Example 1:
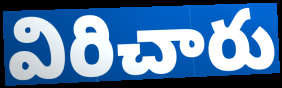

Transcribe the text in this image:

విరిచారు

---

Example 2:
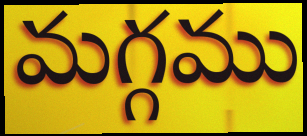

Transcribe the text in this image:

మగ్గము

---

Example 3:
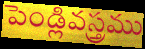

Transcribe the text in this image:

పెండ్లివస్త్రము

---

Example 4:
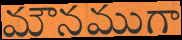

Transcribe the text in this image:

మౌనముగా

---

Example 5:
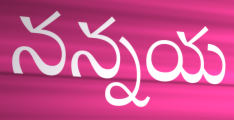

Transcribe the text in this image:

నన్నయ